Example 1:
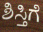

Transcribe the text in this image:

ಶಿಸ್ತಿಗೆ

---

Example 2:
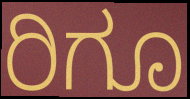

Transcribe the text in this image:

ರಿಗೂ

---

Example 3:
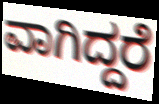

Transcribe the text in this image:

ವಾಗಿದ್ದರೆ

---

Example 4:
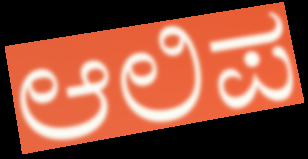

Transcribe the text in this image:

ಆಲಿಪ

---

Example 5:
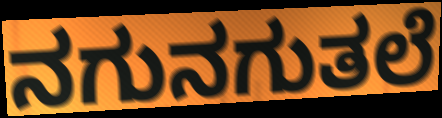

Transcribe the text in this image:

ನಗುನಗುತಲೆ